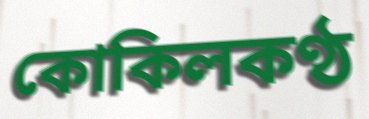
কোকিলকণ্ঠ